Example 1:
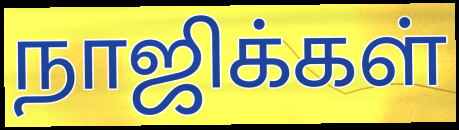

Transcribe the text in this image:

நாஜிக்கள்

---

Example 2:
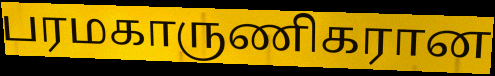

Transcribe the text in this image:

பரமகாருணிகரான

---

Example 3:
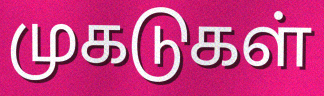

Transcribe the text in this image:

முகடுகள்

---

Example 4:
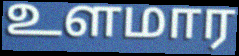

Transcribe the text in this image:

உளமார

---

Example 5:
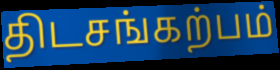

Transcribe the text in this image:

திடசங்கற்பம்